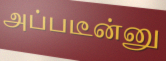
அப்படீன்னு